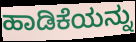
ಹಾಡಿಕೆಯನ್ನು